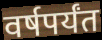
वर्षपर्यंत